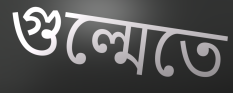
গুল্মেতে